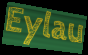
Eylau